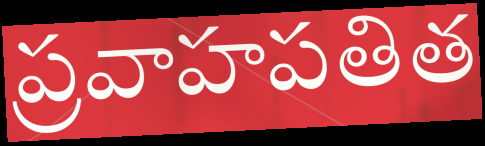
ప్రవాహపతిత